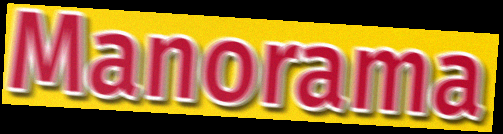
Manorama